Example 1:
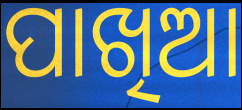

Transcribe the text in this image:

ପାଖିଆ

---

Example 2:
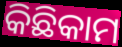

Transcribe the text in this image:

କିଛିକାମ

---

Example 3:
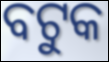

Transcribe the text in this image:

ବଟୁକ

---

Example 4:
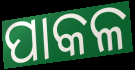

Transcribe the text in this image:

ପାକଳ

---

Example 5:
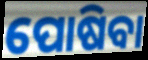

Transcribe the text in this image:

ପୋଷିବା